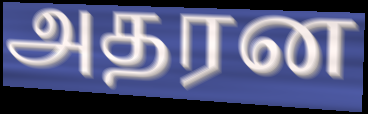
அதரன